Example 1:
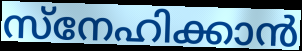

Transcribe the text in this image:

സ്നേഹിക്കാൻ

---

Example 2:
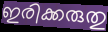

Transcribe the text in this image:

ഇരിക്കരുതു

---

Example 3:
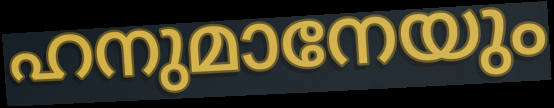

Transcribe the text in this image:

ഹനുമാനേയും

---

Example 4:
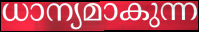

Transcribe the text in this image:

ധാന്യമാകുന്ന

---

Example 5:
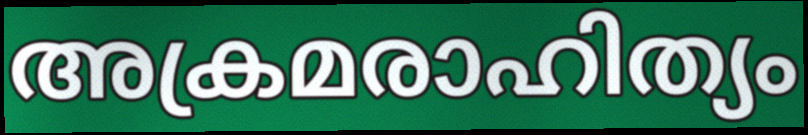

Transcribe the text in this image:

അക്രമരാഹിത്യം